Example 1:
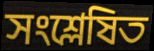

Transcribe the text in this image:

সংশ্লেষিত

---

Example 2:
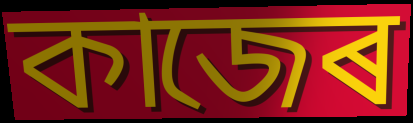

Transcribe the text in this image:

কাজেৰ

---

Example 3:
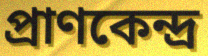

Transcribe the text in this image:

প্ৰাণকেন্দ্ৰ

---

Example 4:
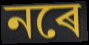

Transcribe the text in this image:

নৰে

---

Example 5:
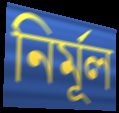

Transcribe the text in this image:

নিৰ্মূল